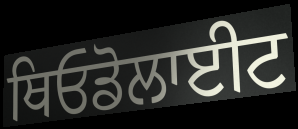
ਥਿਓਡੋਲਾਈਟ